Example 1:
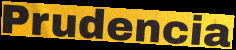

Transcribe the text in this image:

Prudencia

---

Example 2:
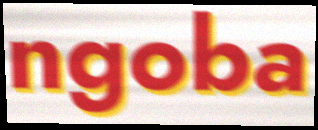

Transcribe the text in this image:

ngoba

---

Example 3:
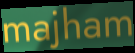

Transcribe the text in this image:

majham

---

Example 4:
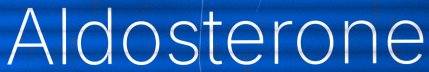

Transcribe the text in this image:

Aldosterone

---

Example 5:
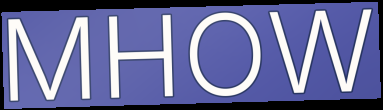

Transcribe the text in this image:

MHOW